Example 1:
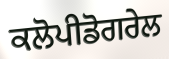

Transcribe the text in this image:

ਕਲੋਪੀਡੋਗਰੇਲ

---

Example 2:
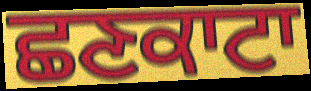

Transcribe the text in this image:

ਛਣਕਾਟਾ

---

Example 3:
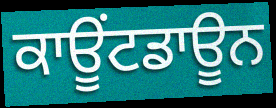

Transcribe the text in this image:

ਕਾਊਂਟਡਾਊਨ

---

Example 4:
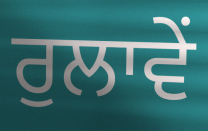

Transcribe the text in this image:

ਰੁਲਾਵੇਂ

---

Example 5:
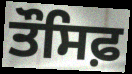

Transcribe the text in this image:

ਤੌਸਿਫ਼